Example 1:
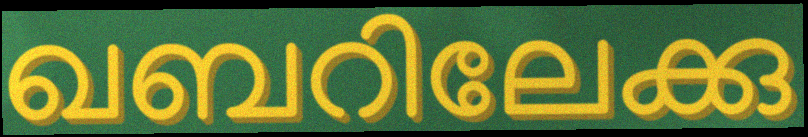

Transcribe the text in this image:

ഖബറിലേക്കു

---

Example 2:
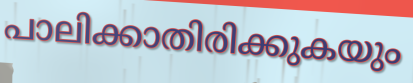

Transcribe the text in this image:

പാലിക്കാതിരിക്കുകയും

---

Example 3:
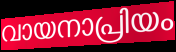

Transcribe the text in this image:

വായനാപ്രിയം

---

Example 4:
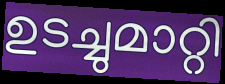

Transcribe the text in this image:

ഉടച്ചുമാറ്റി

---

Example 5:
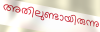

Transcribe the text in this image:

അതിലുണ്ടായിരുന്നു